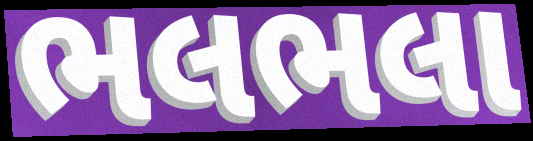
ભલભલા